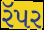
રૅપર